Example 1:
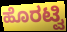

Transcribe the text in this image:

ಹೊರಟ್ವಿ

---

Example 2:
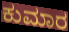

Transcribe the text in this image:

ಕುಮಾರ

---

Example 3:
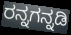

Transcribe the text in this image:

ರನ್ನಗನ್ನಡಿ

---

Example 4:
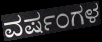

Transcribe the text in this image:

ವರ್ಷಂಗಳ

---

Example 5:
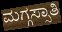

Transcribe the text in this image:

ಮಗ್ಗಸ್ಸಾತಿ